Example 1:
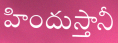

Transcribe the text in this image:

హిందుస్తానీ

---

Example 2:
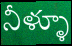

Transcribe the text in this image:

నీళ్ళూ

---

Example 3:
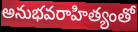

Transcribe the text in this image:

అనుభవరాహిత్యంతో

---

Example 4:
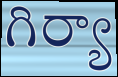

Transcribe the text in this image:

గిర్యా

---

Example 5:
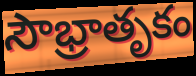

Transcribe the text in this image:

సౌభ్రాతృకం